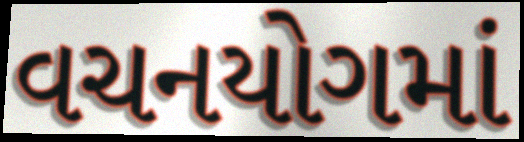
વચનયોગમાં